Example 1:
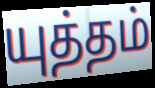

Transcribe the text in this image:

யுத்தம்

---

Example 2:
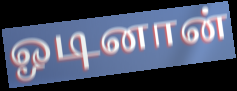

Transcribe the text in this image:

ஓடினான்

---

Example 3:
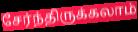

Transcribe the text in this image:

சேர்ந்திருக்கலாம்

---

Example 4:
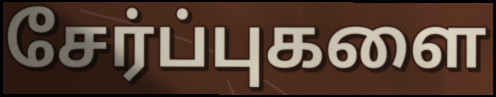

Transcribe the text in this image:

சேர்ப்புகளை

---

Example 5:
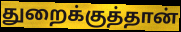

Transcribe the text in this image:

துறைக்குத்தான்